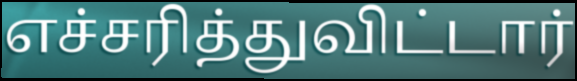
எச்சரித்துவிட்டார்